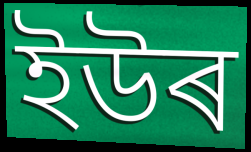
ইউৰ